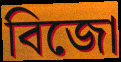
বিজো